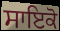
ਸਾਇਕੋ